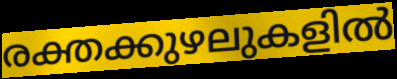
രക്തക്കുഴലുകളിൽ